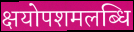
क्षयोपशमलब्धि